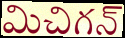
మిచిగన్